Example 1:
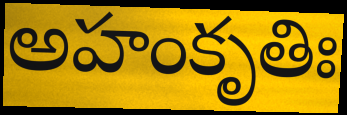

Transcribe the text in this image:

అహంకృతిః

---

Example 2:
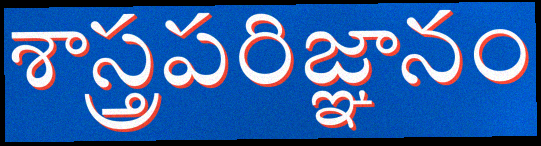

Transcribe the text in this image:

శాస్త్రపరిజ్ఞానం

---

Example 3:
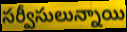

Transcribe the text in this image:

సర్వీసులున్నాయి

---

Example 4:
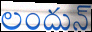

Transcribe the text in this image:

లందున్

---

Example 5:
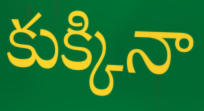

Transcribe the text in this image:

కుక్కినా